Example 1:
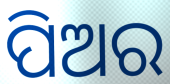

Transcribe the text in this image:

ପିଅର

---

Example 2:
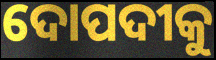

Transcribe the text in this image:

ଦୋପଦୀକୁ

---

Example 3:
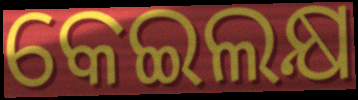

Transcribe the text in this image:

କେଇଲକ୍ଷ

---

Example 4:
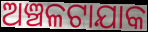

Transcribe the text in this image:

ଅଞ୍ଚଳଟାଯାକ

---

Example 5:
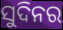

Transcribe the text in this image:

ସୁଦିନର